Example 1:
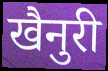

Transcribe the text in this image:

खैनुरी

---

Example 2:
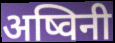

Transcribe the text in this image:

अष्विनी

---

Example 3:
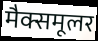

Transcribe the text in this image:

मैक्समूलर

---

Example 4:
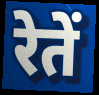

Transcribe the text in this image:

रेतें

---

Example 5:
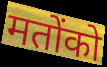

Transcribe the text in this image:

मतोंको